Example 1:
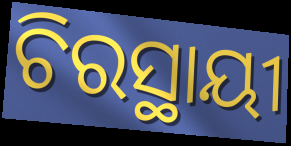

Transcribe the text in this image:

ଚିରସ୍ଥାୟୀ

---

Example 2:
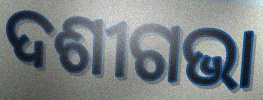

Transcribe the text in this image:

ଦଶୀଗଭା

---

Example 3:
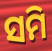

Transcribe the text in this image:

ସମି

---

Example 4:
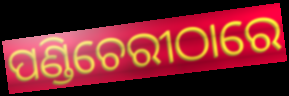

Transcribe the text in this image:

ପଣ୍ଡିଚେରୀଠାରେ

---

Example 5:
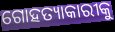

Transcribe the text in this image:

ଗୋହତ୍ୟାକାରୀକୁ